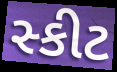
સ્કીટ